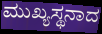
ಮುಖ್ಯಸ್ಥನಾದ